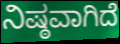
ನಿಷ್ಠವಾಗಿದೆ